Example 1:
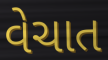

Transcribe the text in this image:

વેચાત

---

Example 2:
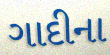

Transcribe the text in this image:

ગાદીના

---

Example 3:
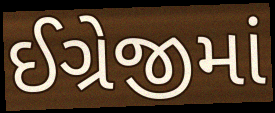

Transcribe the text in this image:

ઈગ્રેજીમાં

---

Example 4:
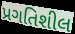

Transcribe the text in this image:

પ્રગતિશીલ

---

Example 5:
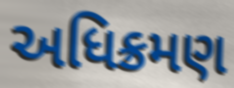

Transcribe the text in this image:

અધિક્રમણ